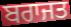
ਬਰਾਜਤ